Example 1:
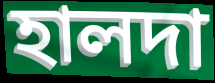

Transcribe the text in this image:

হালদা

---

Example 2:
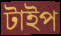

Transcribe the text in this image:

টাইপ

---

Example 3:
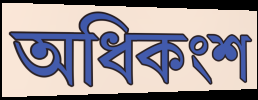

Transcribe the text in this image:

অধিকংশ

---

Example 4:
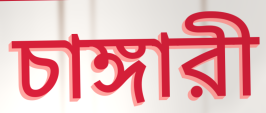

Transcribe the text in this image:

চাঙ্গারী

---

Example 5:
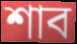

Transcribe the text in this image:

শাব